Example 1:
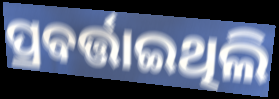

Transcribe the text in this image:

ପ୍ରବର୍ତ୍ତାଇଥିଲି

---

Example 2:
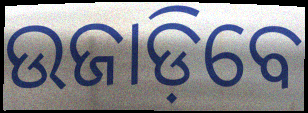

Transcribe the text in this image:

ଉଜାଡ଼ିବେ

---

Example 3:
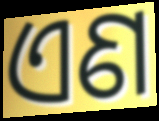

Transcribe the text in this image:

ଏଣ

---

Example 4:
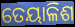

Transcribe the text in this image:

ତେୟାଳିଶ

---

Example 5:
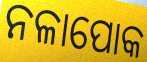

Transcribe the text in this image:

ନଳାପୋକ